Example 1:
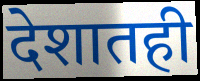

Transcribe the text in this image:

देशातही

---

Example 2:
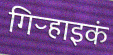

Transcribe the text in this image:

गिऱ्हाइकं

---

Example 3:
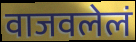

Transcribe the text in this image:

वाजवलेलं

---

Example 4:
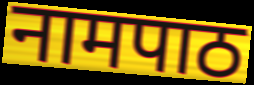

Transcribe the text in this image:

नामपाठ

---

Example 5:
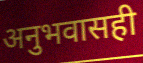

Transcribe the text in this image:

अनुभवासही